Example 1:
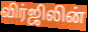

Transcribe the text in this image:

விர்ஜிலின்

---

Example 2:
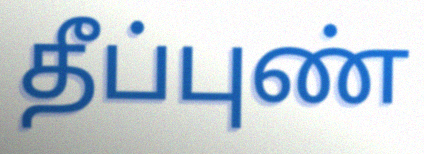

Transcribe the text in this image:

தீப்புண்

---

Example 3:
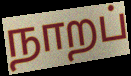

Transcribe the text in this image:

நாறப்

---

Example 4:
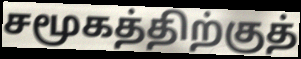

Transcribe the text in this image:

சமூகத்திற்குத்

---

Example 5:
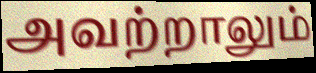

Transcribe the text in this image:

அவற்றாலும்